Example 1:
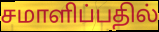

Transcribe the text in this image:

சமாளிப்பதில்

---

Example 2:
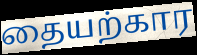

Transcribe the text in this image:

தையற்கார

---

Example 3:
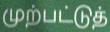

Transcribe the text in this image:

முற்பட்டுத்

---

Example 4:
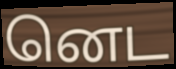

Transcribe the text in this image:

னெட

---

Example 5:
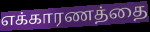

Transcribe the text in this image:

எக்காரணத்தை